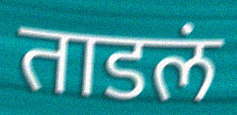
ताडलं